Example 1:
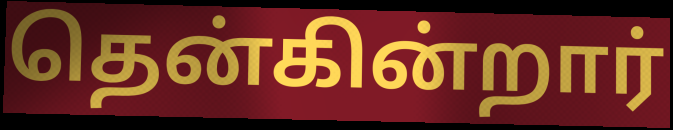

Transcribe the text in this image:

தென்கின்றார்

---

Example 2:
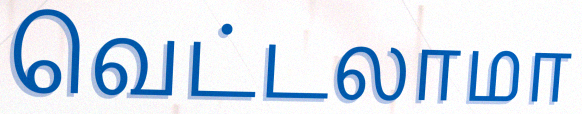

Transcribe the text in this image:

வெட்டலாமா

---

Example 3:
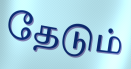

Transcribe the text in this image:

தேடும்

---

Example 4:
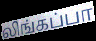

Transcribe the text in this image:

லிங்கப்பா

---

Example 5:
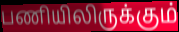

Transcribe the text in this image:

பணியிலிருக்கும்